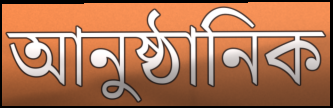
আনুষ্ঠানিক